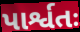
પાર્શ્વતઃ